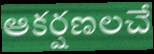
ఆకర్షణలచే